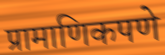
प्रामाणिकपणे